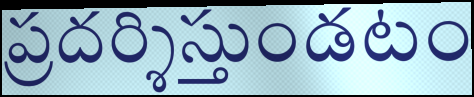
ప్రదర్శిస్తుండటం